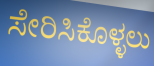
ಸೇರಿಸಿಕೊಳ್ಳಲು